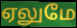
ஏலுமே